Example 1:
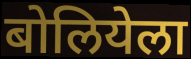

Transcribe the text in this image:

बोलियेला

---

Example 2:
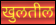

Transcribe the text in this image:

खुलतील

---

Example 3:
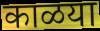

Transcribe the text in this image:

काळया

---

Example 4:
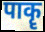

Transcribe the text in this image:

पाकॄ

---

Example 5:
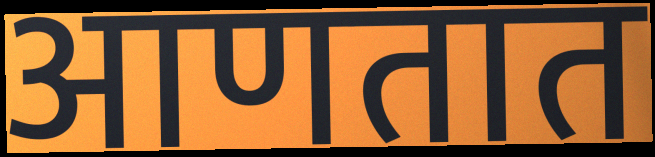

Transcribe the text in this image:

आणतात